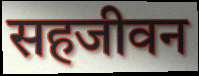
सहजीवन